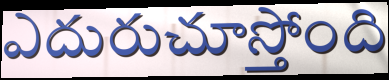
ఎదురుచూస్తోంది